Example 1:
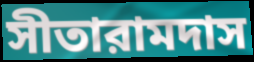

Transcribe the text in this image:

সীতারামদাস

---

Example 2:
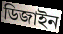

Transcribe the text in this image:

ডিজাইন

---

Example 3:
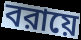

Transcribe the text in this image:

বরায়ে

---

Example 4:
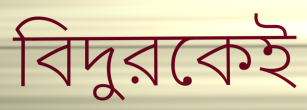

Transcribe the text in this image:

বিদুরকেই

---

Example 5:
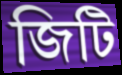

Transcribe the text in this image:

জিটি